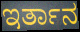
ಇರ್ತಾನ